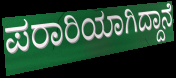
ಪರಾರಿಯಾಗಿದ್ದಾನೆ